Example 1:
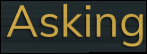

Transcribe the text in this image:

Asking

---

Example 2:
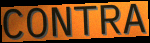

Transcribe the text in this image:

CONTRA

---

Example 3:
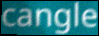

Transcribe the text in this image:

cangle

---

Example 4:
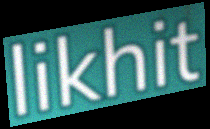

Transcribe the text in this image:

likhit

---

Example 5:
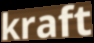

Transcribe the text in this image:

kraft